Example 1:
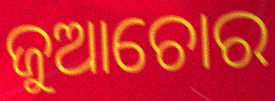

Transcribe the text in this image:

ଜୁଆଚୋର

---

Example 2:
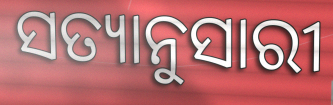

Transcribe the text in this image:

ସତ୍ୟାନୁସାରୀ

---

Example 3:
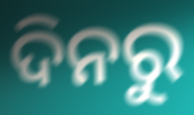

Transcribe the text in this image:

ଦିନରୁ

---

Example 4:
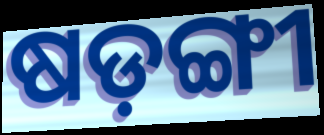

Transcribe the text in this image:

ଷଡ଼ଙ୍ଗୀ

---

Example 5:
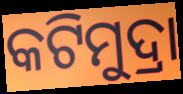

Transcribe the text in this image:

କଟିମୁଦ୍ରା